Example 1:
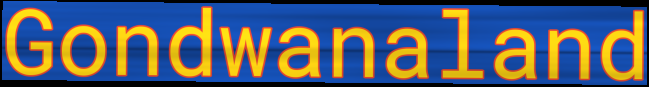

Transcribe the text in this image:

Gondwanaland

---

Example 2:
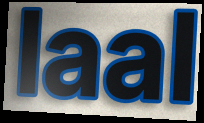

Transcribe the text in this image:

laal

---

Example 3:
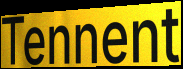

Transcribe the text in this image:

Tennent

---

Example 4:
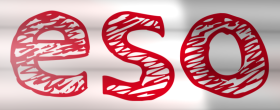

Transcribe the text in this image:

eso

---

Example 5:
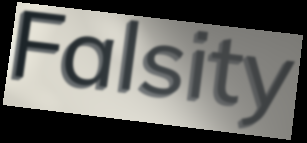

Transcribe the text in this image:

Falsity